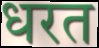
धरत